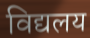
विद्यलय